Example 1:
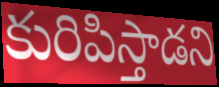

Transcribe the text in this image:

కురిపిస్తాడని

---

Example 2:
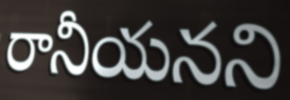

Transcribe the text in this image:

రానీయనని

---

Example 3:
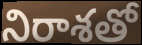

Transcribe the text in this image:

నిరాశతో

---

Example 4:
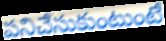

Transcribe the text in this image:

పనిచేసుకుంటుంటే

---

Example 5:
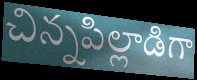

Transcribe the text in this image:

చిన్నపిల్లాడిగా